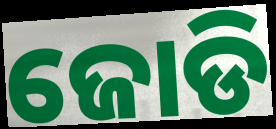
ଜୋଡି